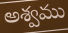
అశ్వము